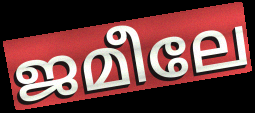
ജമീലേ